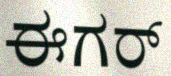
ಈಗರ್